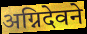
अग्निदेवने